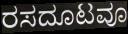
ರಸದೂಟವೂ